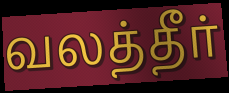
வலத்தீர்